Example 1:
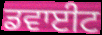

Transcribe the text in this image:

ਡਵਾਈਟ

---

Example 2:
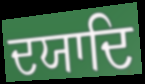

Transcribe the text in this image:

ਦਯਾਦਿ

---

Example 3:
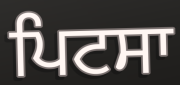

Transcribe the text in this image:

ਪਿਟਸਾ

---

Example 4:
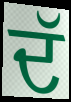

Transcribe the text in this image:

ਦੱ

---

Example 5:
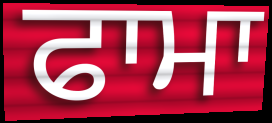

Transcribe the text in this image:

ਫਾਮਾ